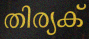
തിര്യക്